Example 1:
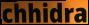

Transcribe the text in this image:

chhidra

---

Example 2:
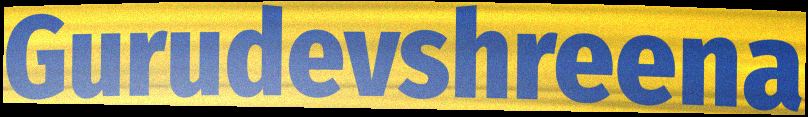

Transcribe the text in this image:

Gurudevshreena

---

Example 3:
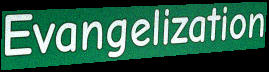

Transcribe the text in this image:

Evangelization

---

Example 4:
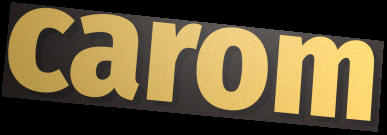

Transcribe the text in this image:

carom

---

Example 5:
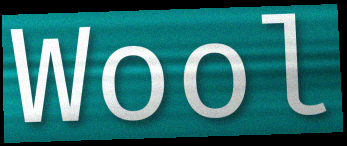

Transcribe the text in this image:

Wool